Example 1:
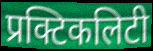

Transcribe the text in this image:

प्रक्टिकलिटी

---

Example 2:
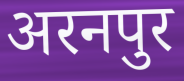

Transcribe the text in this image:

अरनपुर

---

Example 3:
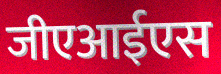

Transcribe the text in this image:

जीएआईएस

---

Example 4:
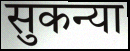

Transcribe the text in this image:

सुकन्या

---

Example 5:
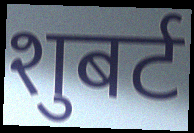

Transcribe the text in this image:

शुबर्ट